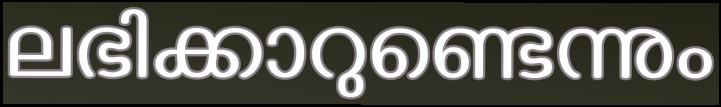
ലഭിക്കാറുണ്ടെന്നും